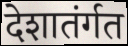
देशातंर्गत